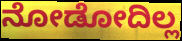
ನೋಡೋದಿಲ್ಲ